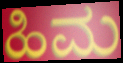
ಹಿಮ